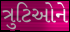
ત્રુટિઓને